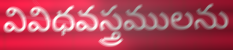
వివిధవస్త్రములను